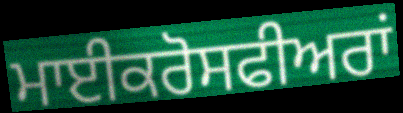
ਮਾਈਕਰੋਸਫੀਅਰਾਂ